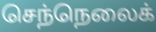
செந்நெலைக்